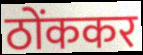
ठोंककर